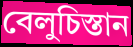
বেলুচিস্তান